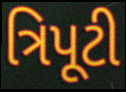
ત્રિપૂટી